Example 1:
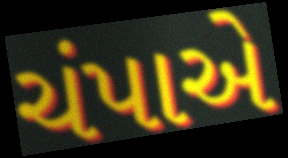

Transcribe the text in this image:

ચંપાએ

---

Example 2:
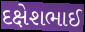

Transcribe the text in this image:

દક્ષેશભાઈ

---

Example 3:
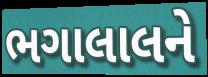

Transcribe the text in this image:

ભગાલાલને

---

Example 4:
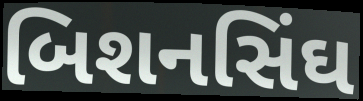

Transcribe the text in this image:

બિશનસિંઘ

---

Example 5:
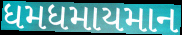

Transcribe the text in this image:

ધમધમાયમાન